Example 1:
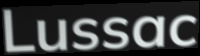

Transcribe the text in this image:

Lussac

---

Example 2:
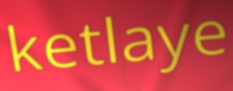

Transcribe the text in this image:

ketlaye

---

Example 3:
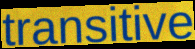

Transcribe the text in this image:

transitive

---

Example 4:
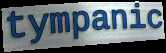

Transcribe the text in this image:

tympanic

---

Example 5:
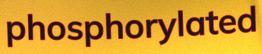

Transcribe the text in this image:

phosphorylated